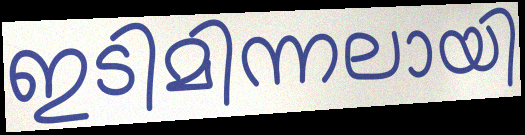
ഇടിമിന്നലായി